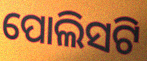
ପୋଲିସଟି